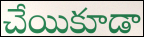
చేయికూడా